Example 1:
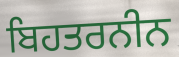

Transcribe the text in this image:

ਬਿਹਤਰਨੀਨ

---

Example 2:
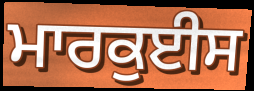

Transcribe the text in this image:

ਮਾਰਕੁਈਸ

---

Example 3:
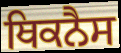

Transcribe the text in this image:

ਥਿਕਨੈਸ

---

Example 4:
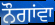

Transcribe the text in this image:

ਨੌਗਾਂਵਾ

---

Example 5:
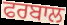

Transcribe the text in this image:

ਫਰਬਾਲ